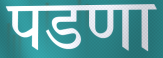
पडणा